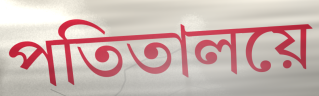
পতিতালয়ে